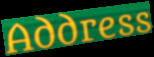
Address